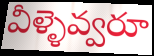
వీళ్ళెవ్వరూ